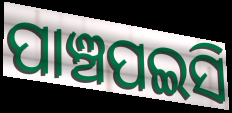
ପାଞ୍ଚପଇସି